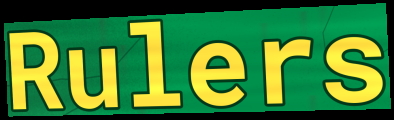
Rulers